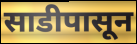
साडीपासून